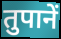
तुपानें